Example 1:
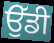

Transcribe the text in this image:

ਉੱਡੀ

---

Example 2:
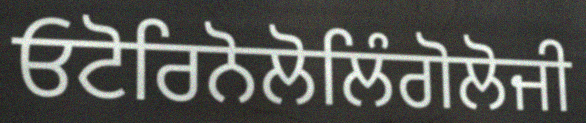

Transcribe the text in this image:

ਓਟੋਰਿਨੋਲੋਲਿੰਗੋਲੋਜੀ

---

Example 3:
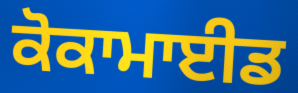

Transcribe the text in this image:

ਕੋਕਾਮਾਈਡ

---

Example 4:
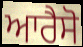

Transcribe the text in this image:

ਆਰੈਸੋ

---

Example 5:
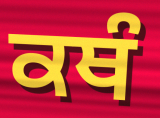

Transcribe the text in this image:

ਕਥੰ